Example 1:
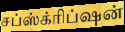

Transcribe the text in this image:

சப்ஸ்க்ரிப்ஷன்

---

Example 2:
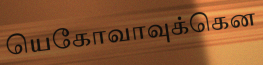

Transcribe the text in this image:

யெகோவாவுக்கென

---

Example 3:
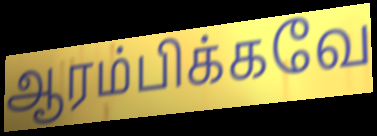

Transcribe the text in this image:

ஆரம்பிக்கவே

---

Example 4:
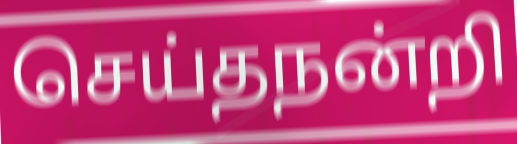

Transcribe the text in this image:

செய்தநன்றி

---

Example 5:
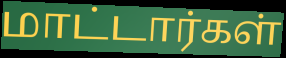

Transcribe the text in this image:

மாட்டார்கள்